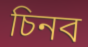
চিনব